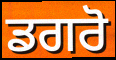
ਡਗਰੋ